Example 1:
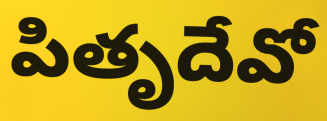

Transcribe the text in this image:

పితృదేవో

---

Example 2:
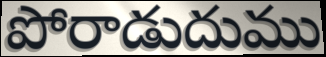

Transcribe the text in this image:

పోరాడుదుము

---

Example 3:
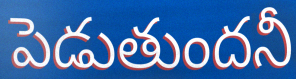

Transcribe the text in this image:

పెడుతుందనీ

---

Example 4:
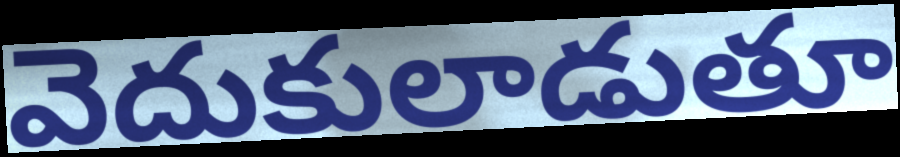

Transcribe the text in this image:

వెదుకులాడుతూ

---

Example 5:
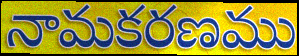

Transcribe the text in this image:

నామకరణము